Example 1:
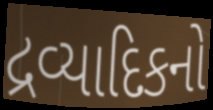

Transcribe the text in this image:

દ્રવ્યાદિકનો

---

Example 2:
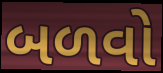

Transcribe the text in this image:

બળવો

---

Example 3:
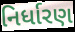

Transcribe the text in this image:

નિર્ધારણ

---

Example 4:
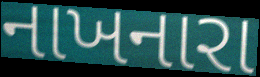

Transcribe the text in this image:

નાખનારા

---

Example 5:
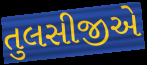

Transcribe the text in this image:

તુલસીજીએ